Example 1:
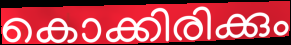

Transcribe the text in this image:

കൊക്കിരിക്കും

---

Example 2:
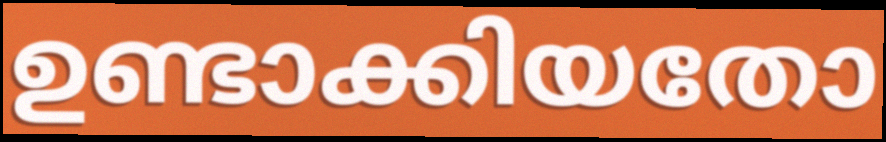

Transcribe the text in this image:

ഉണ്ടാക്കിയതോ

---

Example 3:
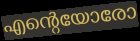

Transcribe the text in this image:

എന്റെയോരോ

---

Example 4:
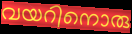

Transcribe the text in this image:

വയറിനൊരു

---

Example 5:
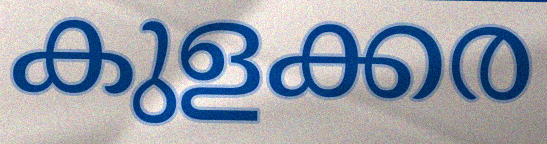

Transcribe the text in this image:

കുളക്കര